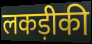
लकड़ीकी